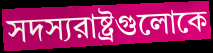
সদস্যরাষ্ট্রগুলোকে